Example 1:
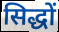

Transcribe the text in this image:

सिद्धों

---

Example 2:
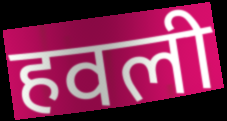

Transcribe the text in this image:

हवली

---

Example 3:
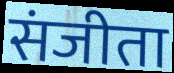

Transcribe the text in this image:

संजीता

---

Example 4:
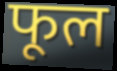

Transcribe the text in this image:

फूल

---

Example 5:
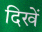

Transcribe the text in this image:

दिखें